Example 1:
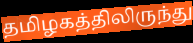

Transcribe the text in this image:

தமிழகத்திலிருந்து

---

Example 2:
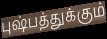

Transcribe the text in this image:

புஷ்பத்துக்கும்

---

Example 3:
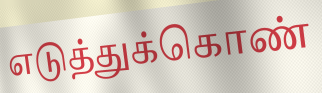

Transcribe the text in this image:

எடுத்துக்கொண்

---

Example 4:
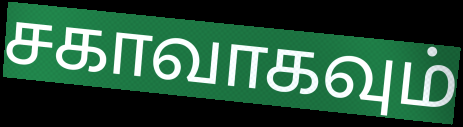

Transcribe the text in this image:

சகாவாகவும்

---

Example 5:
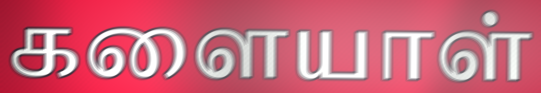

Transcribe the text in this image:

களையாள்